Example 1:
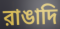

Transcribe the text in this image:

রাঙাদি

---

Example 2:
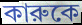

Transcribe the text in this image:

কারুকে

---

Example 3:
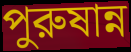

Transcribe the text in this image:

পুরুষান্ন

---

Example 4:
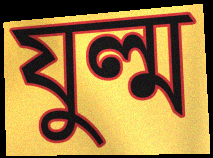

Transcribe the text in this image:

যুল্ম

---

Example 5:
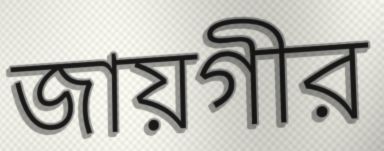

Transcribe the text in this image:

জায়গীর